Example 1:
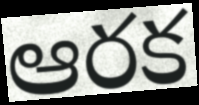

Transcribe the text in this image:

ఆరక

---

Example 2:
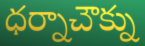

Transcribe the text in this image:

ధర్నాచౌక్ను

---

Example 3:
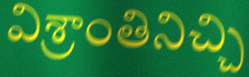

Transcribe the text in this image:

విశ్రాంతినిచ్చి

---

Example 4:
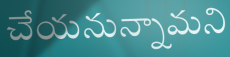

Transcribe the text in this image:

చేయనున్నామని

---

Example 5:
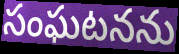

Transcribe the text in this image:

సంఘటనను